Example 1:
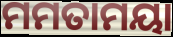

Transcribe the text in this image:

ମମତାମୟା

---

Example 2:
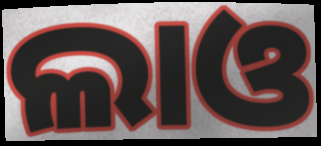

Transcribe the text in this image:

ଲାଓ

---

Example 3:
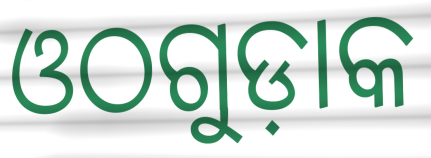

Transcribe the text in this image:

ଓଠଗୁଡ଼ାକ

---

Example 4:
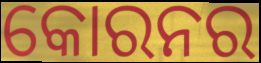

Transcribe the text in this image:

କୋରନର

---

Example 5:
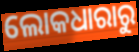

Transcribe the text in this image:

ଲୋକଧାରାରୁ